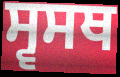
ਸ੍ਵਸਥ